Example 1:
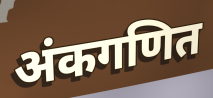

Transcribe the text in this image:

अंकगणित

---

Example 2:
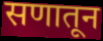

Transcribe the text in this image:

सणातून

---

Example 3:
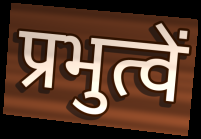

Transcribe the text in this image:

प्रभुत्वें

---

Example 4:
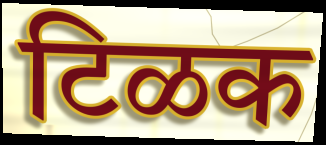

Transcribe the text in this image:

टिळक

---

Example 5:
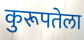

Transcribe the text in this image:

कुरूपतेला